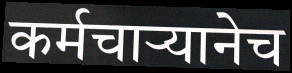
कर्मचाऱ्यानेच